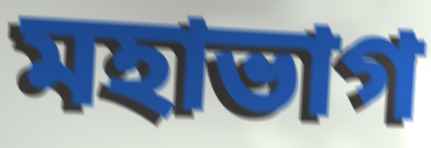
মহাভাগ